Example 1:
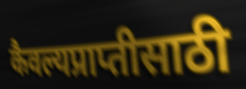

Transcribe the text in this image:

कैवल्यप्राप्तीसाठी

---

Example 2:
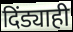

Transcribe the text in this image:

दिंड्याही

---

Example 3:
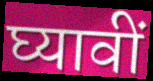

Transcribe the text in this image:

घ्यावीं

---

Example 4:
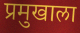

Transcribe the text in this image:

प्रमुखाला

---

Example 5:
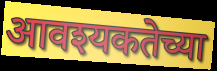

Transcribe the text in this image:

आवश्यकतेच्या